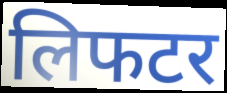
लिफटर